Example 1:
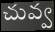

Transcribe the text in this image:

చువ్వ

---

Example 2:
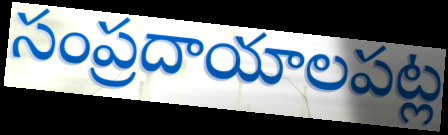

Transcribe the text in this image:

సంప్రదాయాలపట్ల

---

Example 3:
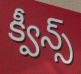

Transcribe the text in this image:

క్వీన్స్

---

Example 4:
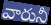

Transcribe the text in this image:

వారునీ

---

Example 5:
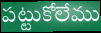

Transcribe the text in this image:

పట్టుకోలేము